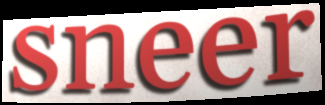
sneer